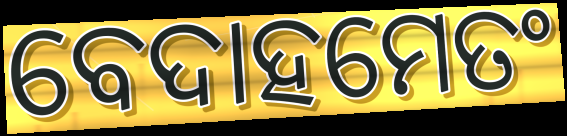
ବେଦାହମେତଂ